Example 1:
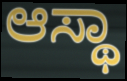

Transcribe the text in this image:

ಆಸ್ಥಾ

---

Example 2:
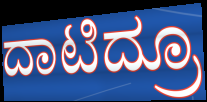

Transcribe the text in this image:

ದಾಟಿದ್ರೂ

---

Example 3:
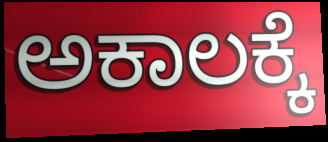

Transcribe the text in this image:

ಅಕಾಲಕ್ಕೆ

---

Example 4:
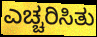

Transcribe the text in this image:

ಎಚ್ಚರಿಸಿತು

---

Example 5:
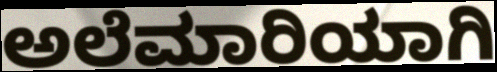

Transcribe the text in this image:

ಅಲೆಮಾರಿಯಾಗಿ